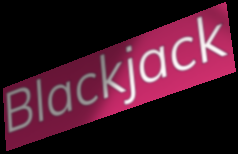
Blackjack